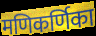
मणिकर्णिका